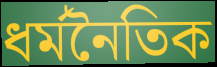
ধর্মনৈতিক